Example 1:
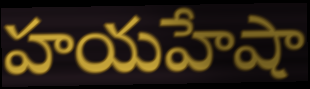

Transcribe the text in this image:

హయహేషా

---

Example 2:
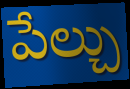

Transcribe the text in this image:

పేల్చు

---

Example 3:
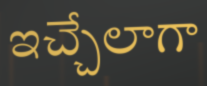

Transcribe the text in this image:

ఇచ్చేలాగా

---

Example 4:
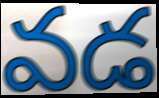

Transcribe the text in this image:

వడ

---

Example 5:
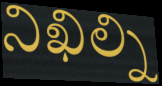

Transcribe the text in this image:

నిఖిల్ని